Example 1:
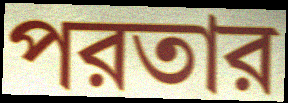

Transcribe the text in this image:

পরতার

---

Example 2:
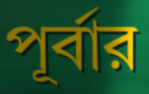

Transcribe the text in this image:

পূর্বার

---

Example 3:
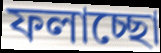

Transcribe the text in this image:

ফলাচ্ছো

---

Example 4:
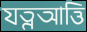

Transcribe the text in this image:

যত্নআত্তি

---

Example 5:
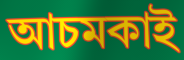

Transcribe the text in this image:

আচমকাই